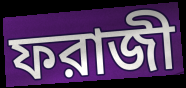
ফরাজী